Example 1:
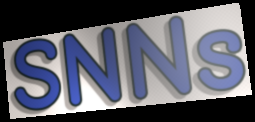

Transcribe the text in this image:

SNNs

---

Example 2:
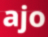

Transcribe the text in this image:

ajo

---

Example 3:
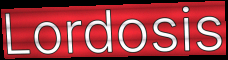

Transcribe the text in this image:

Lordosis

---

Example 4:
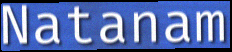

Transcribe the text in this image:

Natanam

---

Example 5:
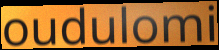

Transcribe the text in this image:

oudulomi